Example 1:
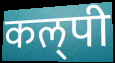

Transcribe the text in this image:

कल्पी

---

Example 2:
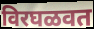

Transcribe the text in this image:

विरघळवत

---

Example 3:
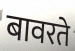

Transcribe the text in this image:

बावरते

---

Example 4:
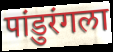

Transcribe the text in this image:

पांडुरंगला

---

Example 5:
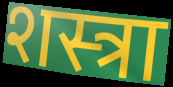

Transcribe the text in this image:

शस्त्रा